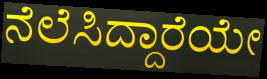
ನೆಲೆಸಿದ್ದಾರೆಯೇ